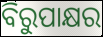
ବିରୁପାକ୍ଷର